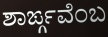
ಶಾರ್ಙ್ಗವೆಂಬ